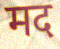
मद